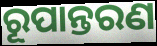
ରୂପାନ୍ତରଣ